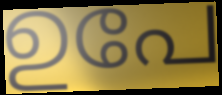
ഉപേ